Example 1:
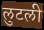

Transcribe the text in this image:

लुटली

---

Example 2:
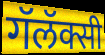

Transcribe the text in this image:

गॅलॅक्सी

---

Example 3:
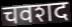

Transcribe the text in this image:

चवशद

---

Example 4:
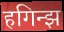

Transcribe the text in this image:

हगिन्झ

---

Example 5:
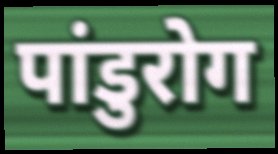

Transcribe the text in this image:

पांडुरोग